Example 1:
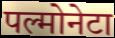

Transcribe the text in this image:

पल्मोनेटा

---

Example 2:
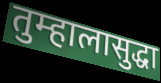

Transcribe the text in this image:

तुम्हालासुद्धा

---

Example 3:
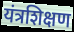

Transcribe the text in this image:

यंत्रशिक्षण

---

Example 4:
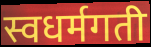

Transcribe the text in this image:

स्वधर्मगती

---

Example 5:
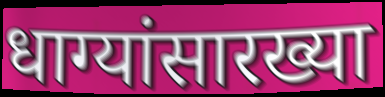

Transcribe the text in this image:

धाग्यांसारख्या